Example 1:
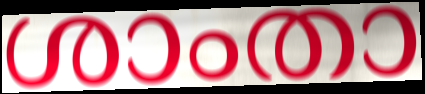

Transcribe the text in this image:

ശാംതാ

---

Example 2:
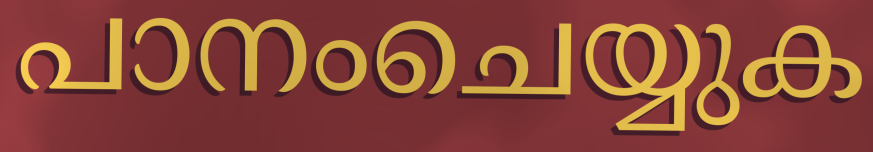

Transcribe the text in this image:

പാനംചെയ്യുക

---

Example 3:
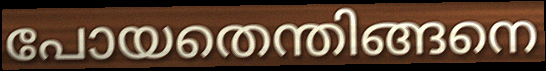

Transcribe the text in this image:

പോയതെന്തിങ്ങനെ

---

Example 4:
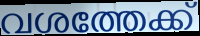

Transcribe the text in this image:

വശത്തേക്ക്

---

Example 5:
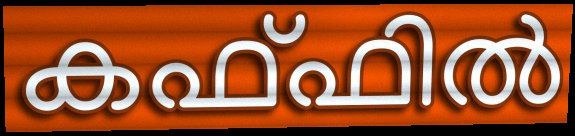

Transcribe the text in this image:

കഫ്ഫിൽ